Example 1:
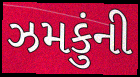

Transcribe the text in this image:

ઝમકુંની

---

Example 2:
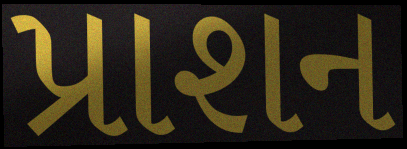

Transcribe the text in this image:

પ્રાશન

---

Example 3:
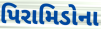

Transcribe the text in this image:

પિરામિડોના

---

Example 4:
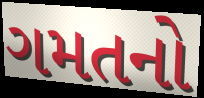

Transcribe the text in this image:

ગમતનો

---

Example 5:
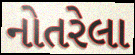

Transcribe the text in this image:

નોતરેલા